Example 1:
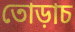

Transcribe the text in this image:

তোড়াচ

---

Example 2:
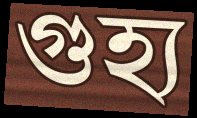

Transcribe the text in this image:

গুহ্য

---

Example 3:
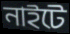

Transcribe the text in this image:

নাইটে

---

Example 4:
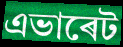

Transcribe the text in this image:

এভাৰেট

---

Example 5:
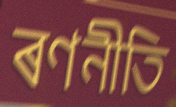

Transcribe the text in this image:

ৰণনীতি